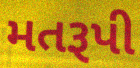
મતરૂપી